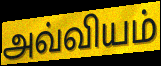
அவ்வியம்